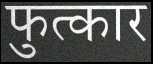
फुत्कार